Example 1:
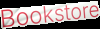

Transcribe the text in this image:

Bookstore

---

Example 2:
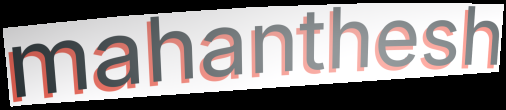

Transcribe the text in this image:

mahanthesh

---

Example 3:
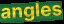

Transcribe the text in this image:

angles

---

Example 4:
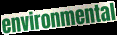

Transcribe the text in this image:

environmental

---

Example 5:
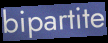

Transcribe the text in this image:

bipartite